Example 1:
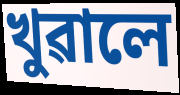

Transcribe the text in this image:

খুৱালে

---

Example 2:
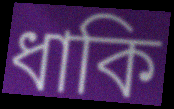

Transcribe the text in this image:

ধাকি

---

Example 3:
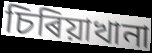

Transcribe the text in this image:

চিৰিয়াখানা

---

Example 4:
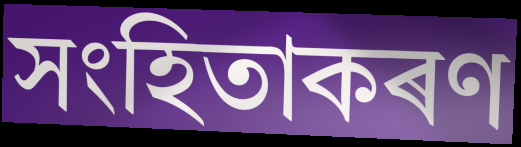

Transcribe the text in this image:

সংহিতাকৰণ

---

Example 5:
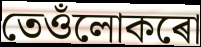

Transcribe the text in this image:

তেওঁলোকৰো